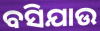
ବସିଯାଉ